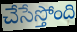
చేసేస్తోంది